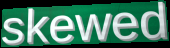
skewed